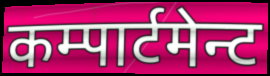
कम्पार्टमेन्ट